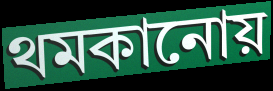
থমকানোয়